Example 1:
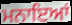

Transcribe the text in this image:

ਮਨਾਇਆਂ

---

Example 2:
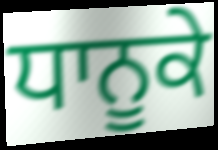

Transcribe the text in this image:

ਧਾਨੂਕੇ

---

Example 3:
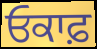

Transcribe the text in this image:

ਓਕਾਫ਼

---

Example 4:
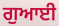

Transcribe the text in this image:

ਗੁਆਈ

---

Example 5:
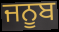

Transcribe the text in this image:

ਜਨੂਬ